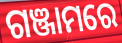
ଗଞ୍ଜାମରେ